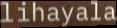
lihayala